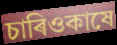
চাৰিওকাষে